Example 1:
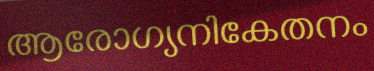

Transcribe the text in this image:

ആരോഗ്യനികേതനം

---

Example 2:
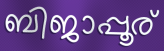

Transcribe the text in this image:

ബിജാപ്പൂര്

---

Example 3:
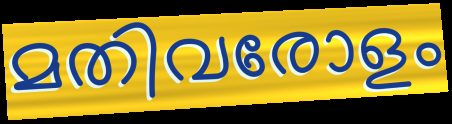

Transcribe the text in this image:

മതിവരോളം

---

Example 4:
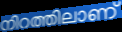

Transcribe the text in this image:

നിറത്തിലാണ്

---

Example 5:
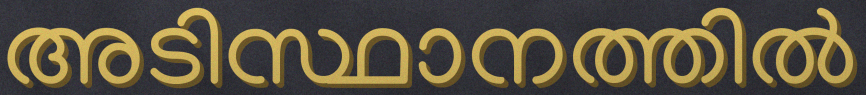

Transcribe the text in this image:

അടിസ്ഥാനത്തിൽ